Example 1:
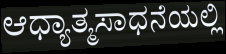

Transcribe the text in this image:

ಆಧ್ಯಾತ್ಮಸಾಧನೆಯಲ್ಲಿ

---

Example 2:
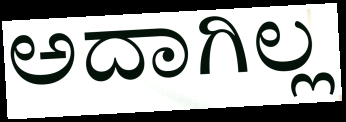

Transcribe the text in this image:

ಅದಾಗಿಲ್ಲ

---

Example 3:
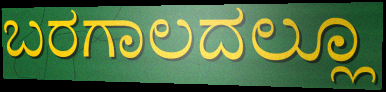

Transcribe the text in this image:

ಬರಗಾಲದಲ್ಲೂ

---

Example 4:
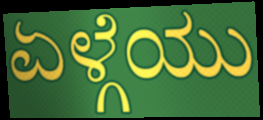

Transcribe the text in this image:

ಏಳ್ಗೆಯು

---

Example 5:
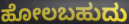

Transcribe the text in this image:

ಹೋಲಬಹುದು